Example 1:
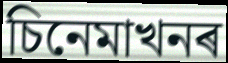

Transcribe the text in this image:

চিনেমাখনৰ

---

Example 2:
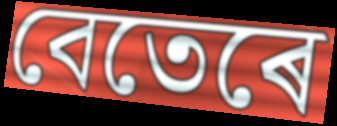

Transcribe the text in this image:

বেতেৰে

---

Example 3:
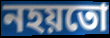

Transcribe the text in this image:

নহয়তো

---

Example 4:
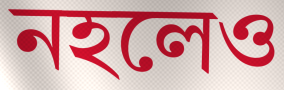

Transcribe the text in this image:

নহলেও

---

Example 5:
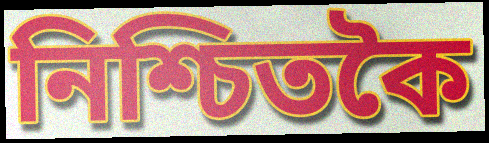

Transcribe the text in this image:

নিশ্চিতকৈ